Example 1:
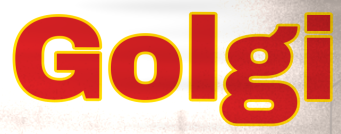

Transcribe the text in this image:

Golgi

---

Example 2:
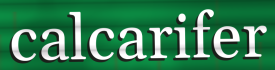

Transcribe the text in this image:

calcarifer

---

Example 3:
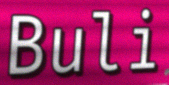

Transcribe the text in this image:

Buli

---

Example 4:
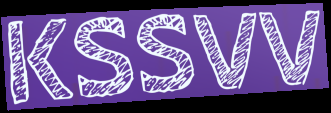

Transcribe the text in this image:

KSSVV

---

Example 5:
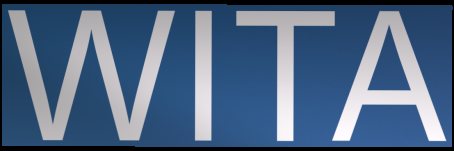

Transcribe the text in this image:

WITA